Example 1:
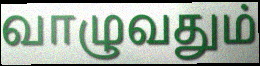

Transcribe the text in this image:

வாழுவதும்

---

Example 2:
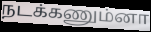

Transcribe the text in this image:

நடக்கணும்னா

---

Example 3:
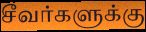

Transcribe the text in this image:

சீவர்களுக்கு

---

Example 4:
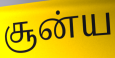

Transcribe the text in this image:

சூன்ய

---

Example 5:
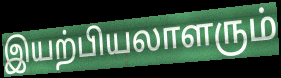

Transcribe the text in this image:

இயற்பியலாளரும்